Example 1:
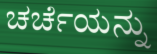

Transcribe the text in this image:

ಚರ್ಚೆಯನ್ನು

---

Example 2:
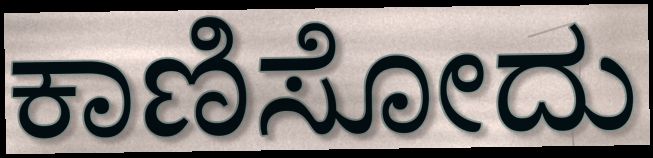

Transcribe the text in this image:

ಕಾಣಿಸೋದು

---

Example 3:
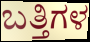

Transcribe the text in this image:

ಬತ್ತಿಗಳ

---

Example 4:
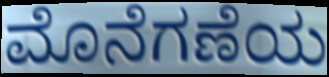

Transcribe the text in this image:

ಮೊನೆಗಣೆಯ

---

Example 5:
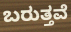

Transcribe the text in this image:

ಬರುತ್ತವೆ